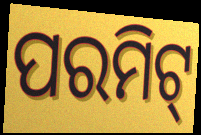
ପରମିଟ୍